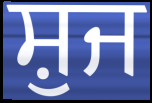
ਸ਼ੁਜ